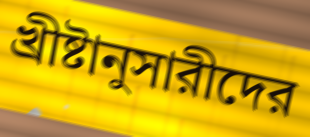
খ্রীষ্টানুসারীদের